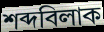
শব্দবিলাক